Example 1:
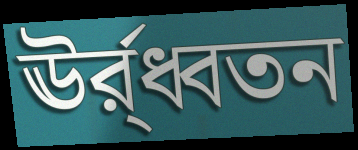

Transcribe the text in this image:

ঊর্র্ধ্বতন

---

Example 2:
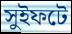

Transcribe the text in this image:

সুইফটে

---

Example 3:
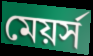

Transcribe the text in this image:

মেয়র্স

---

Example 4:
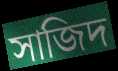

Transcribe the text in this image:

সাজিদ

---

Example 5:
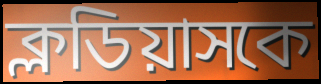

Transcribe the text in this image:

ক্লডিয়াসকে